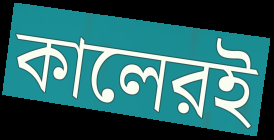
কালেরই